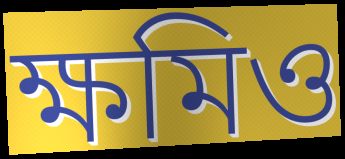
ক্ষমিও